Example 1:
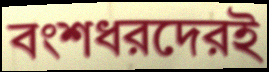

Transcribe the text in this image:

বংশধরদেরই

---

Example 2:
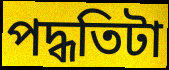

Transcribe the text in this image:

পদ্ধতিটা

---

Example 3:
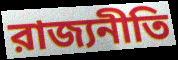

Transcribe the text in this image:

রাজ্যনীতি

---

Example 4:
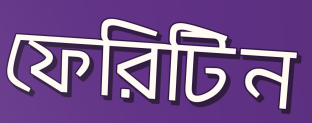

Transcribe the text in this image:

ফেরিটিন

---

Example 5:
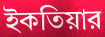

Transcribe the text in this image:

ইকতিয়ার